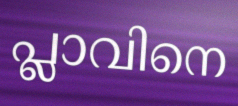
പ്ലാവിനെ